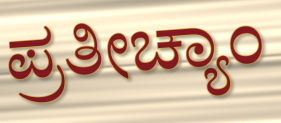
ಪ್ರತೀಚ್ಯಾಂ